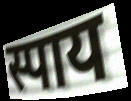
स्पाय